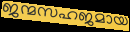
ജന്മസഹജമായ